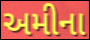
અમીના